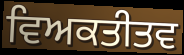
ਵਿਅਕਤੀਤਵ